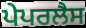
ਪੇਪਰਲੈਸ